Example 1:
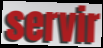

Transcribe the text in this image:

servir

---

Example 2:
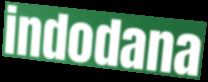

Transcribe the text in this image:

indodana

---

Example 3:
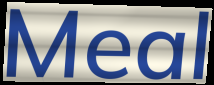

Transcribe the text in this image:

Meal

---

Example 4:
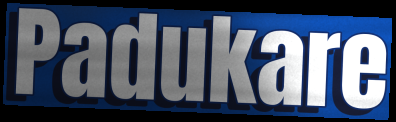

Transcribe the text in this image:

Padukare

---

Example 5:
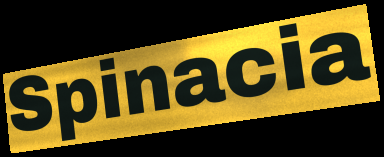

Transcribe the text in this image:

Spinacia